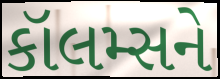
કૉલમ્સને